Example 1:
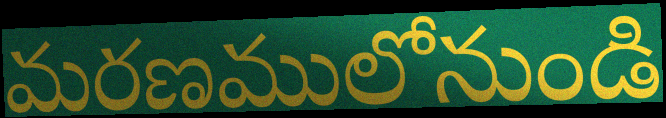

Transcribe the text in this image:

మరణములోనుండి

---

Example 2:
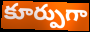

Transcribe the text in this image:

కూర్పుగా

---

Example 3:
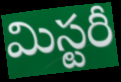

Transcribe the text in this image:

మిస్టరీ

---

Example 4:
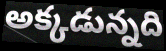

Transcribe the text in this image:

అక్కడున్నది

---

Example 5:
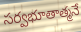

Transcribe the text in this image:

సర్వభూతాత్మనే